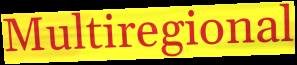
Multiregional